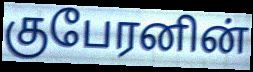
குபேரனின்